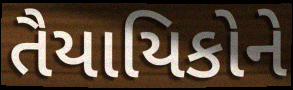
તૈયાયિકોને